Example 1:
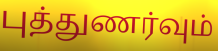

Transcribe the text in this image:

புத்துணர்வும்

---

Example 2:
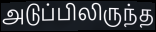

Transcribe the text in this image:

அடுப்பிலிருந்த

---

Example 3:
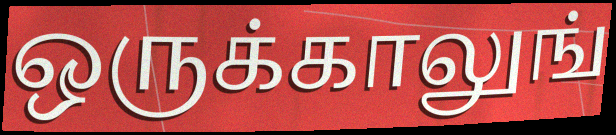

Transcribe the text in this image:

ஒருக்காலுங்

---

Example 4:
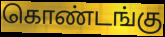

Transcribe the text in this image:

கொண்டங்கு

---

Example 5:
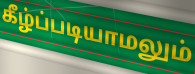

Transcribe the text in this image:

கீழ்ப்படியாமலும்